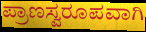
ಪ್ರಾಣಸ್ವರೂಪವಾಗಿ